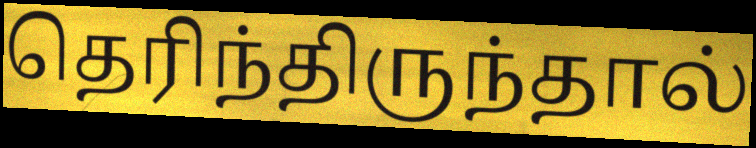
தெரிந்திருந்தால்